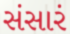
સંસારં